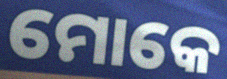
ମୋକେ